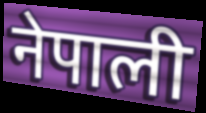
नेपाली